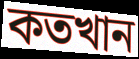
কতখান